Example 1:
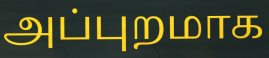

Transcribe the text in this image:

அப்புறமாக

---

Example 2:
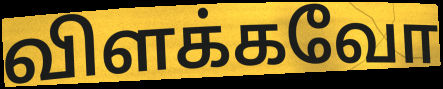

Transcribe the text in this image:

விளக்கவோ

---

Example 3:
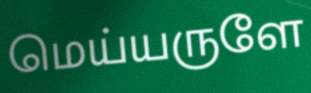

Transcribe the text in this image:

மெய்யருளே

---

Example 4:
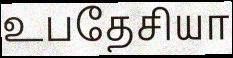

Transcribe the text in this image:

உபதேசியா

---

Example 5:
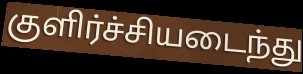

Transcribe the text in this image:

குளிர்ச்சியடைந்து